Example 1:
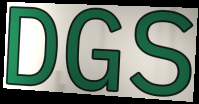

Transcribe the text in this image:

DGS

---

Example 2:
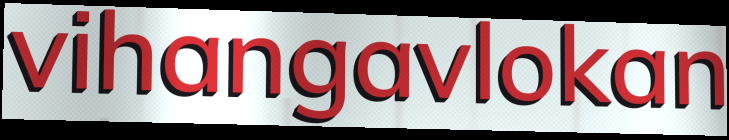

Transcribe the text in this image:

vihangavlokan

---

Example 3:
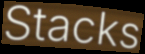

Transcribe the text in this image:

Stacks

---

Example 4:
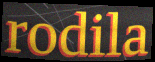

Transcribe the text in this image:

rodila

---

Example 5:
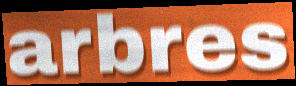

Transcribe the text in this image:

arbres